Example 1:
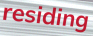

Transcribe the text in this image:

residing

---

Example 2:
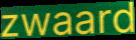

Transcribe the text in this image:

zwaard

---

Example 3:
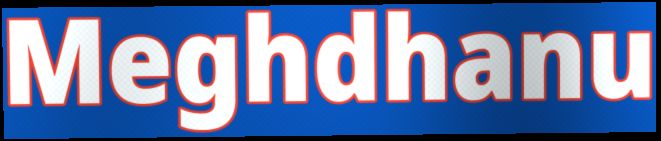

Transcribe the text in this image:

Meghdhanu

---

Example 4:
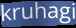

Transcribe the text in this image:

kruhagi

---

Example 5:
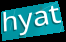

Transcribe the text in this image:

hyat